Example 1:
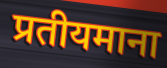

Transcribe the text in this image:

प्रतीयमाना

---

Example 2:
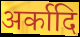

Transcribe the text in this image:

अर्कादि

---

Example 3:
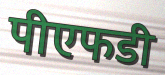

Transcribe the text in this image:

पीएफडी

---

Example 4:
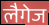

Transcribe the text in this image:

लैगेज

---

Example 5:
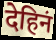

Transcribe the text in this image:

देहिनं